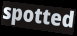
spotted